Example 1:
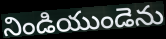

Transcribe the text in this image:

నిండియుండెను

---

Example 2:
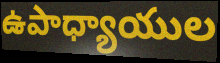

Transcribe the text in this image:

ఉపాధ్యాయుల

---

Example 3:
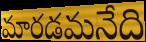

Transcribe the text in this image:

మారడమనేది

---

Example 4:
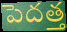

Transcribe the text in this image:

పెదత్త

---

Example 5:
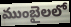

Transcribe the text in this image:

ముంబైలలో